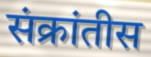
संक्रांतीस